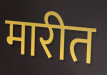
मारीत